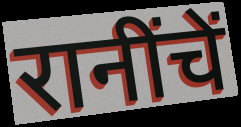
रानींचें